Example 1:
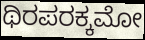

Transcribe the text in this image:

ಥಿರಪರಕ್ಕಮೋ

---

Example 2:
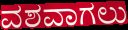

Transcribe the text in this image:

ವಶವಾಗಲು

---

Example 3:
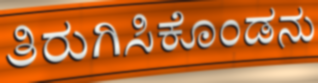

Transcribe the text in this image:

ತಿರುಗಿಸಿಕೊಂಡನು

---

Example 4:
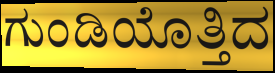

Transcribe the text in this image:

ಗುಂಡಿಯೊತ್ತಿದ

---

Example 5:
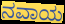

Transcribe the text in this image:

ನವಾಯ